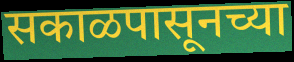
सकाळपासूनच्या